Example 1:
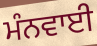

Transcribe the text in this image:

ਮੰਨਵਾਈ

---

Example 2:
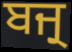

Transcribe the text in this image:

ਬਜ੍ਰ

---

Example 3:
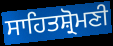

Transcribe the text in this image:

ਸਾਹਿਤਸ਼੍ਰੋਮਣੀ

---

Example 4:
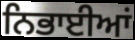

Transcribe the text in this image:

ਨਿਭਾਈਆਂ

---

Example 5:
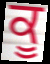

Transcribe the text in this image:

ਕੂ